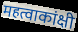
महत्‍वाकांक्षी